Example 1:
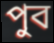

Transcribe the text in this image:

পুব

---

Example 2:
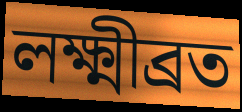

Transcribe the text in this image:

লক্ষ্মীব্রত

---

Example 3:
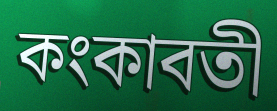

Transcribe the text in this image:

কংকাবতী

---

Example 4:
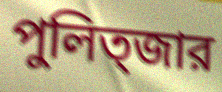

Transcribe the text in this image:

পুলিত্জার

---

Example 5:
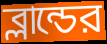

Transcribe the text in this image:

ব্লান্ডের